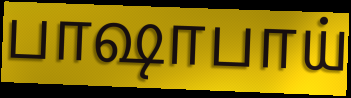
பாஷாபாய்